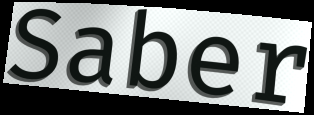
Saber